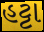
હટ્ટા